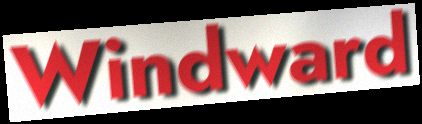
Windward